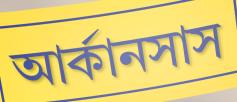
আর্কানসাস